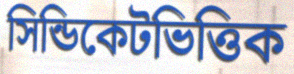
সিন্ডিকেটভিত্তিক